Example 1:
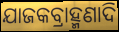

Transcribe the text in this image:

ଯାଜକବ୍ରାହ୍ମଣାଦି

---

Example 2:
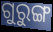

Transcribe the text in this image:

ଗୁରୁଙ୍ଗ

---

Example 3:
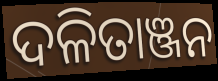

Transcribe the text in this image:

ଦଳିତାଞ୍ଜନ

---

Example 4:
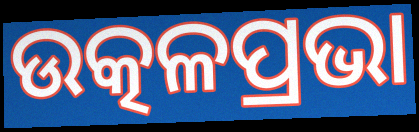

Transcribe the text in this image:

ଉତ୍କଳପ୍ରଭା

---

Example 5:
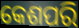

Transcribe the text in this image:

କେଶପରି